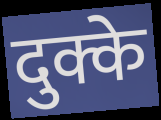
दुक्के